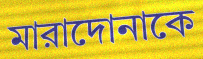
মারাদোনাকে